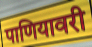
पाणियावरी